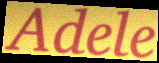
Adele